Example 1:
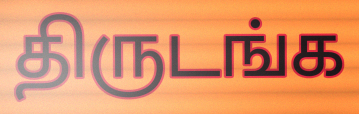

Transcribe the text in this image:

திருடங்க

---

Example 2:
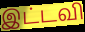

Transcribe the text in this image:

இட்டவி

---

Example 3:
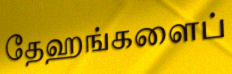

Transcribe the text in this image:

தேஹங்களைப்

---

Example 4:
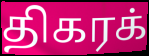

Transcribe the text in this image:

திகரக்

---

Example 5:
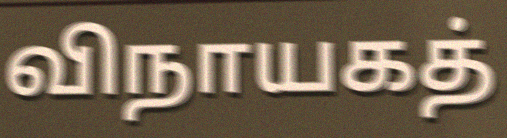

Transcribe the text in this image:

விநாயகத்